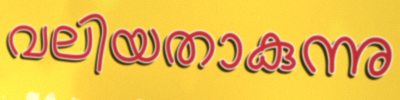
വലിയതാകുന്നു